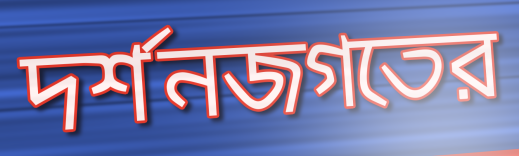
দর্শনজগতের